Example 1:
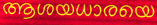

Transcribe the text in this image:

ആശയധാരയെ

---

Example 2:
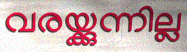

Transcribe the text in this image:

വരയ്ക്കുന്നില്ല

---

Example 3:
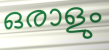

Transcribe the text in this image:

ഒരാളും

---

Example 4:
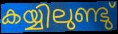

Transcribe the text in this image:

കയ്യിലുണ്ടു്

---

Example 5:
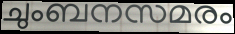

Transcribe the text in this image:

ചുംബനസമരം